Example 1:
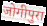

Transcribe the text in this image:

जोगीपुरा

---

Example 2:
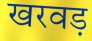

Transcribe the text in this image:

खरवड़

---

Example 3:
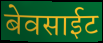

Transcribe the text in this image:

बेवसाईट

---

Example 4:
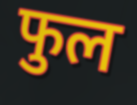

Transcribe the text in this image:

फुल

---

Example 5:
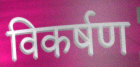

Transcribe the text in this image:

विकर्षण